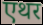
एथर